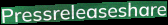
Pressreleaseshare